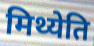
मिथ्येति